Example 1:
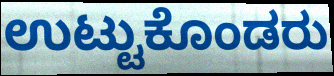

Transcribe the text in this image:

ಉಟ್ಟುಕೊಂಡರು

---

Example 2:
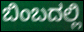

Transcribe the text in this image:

ಬಿಂಬದಲ್ಲಿ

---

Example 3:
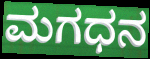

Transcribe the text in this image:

ಮಗಧನ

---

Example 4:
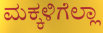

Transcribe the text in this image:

ಮಕ್ಕಳಿಗೆಲ್ಲಾ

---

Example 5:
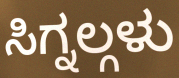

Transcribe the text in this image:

ಸಿಗ್ನಲ್ಗಳು